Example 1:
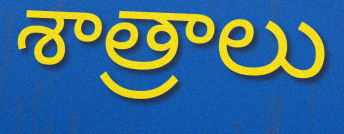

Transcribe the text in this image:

శాత్రాలు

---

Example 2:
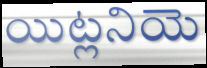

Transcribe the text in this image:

యిట్లనియె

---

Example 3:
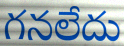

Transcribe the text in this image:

గనలేదు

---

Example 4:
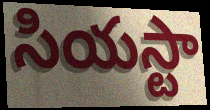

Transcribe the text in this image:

సియస్టా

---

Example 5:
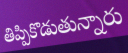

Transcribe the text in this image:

తిప్పికొడుతున్నారు